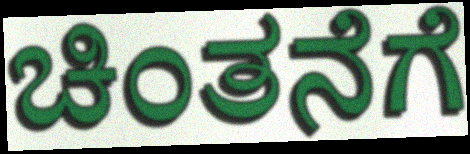
ಚಿಂತನೆಗೆ